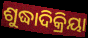
ଶୁଦ୍ଧାଦିକ୍ରିୟା